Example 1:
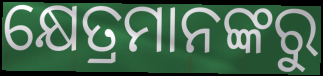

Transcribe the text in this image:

କ୍ଷେତ୍ରମାନଙ୍କରୁ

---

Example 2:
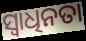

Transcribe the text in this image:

ସ୍ୱାଧିନତା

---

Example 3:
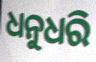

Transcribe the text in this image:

ଧନୁଧରି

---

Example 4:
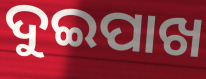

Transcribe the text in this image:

ଦୁଇପାଖ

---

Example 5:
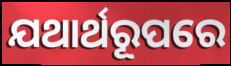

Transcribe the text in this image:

ଯଥାର୍ଥରୂପରେ